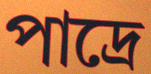
পাদ্রে